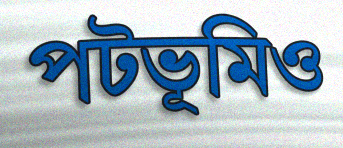
পটভূমিও